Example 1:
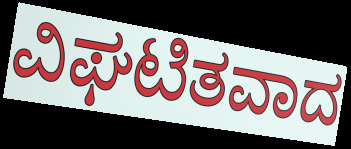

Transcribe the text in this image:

ವಿಘಟಿತವಾದ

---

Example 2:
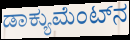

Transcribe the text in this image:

ಡಾಕ್ಯುಮೆಂಟ್‌ನ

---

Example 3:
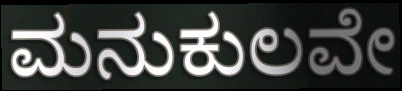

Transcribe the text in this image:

ಮನುಕುಲವೇ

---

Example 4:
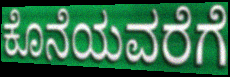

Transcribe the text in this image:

ಕೊನೆಯವರೆಗೆ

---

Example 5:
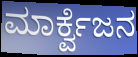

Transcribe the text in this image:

ಮಾರ್ಕ್ವೆಜನ